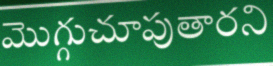
మొగ్గుచూపుతారని